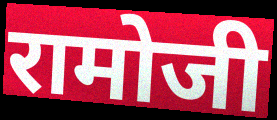
रामोजी